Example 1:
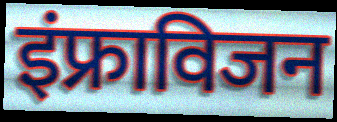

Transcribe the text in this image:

इंफ्राविजन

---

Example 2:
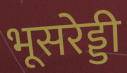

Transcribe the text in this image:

भूसरेड्डी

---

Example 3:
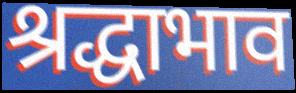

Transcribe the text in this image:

श्रद्धाभाव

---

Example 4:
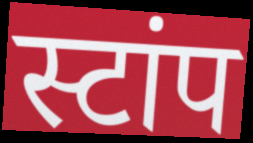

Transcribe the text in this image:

स्टांप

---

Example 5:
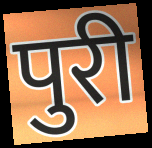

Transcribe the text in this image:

पुरी